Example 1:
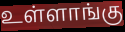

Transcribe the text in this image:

உள்ளாங்கு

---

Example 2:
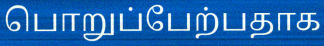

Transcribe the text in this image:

பொறுப்பேற்பதாக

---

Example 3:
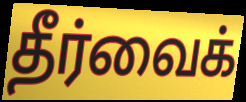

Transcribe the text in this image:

தீர்வைக்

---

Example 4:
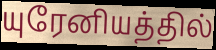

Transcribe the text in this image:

யுரேனியத்தில்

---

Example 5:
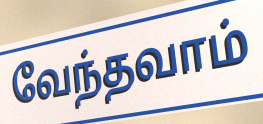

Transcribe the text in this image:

வேந்தவாம்